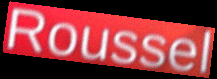
Roussel